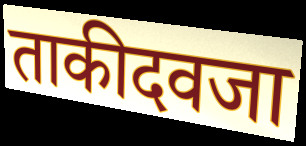
ताकीदवजा